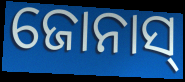
ଜୋନାସ୍